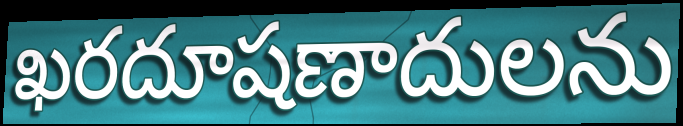
ఖరదూషణాదులను